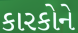
કારકોને